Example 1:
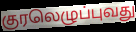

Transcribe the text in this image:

குரலெழுப்புவது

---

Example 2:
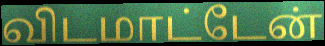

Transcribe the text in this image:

விடமாட்டேன்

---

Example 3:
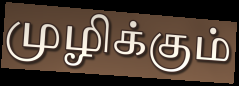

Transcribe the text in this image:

முழிக்கும்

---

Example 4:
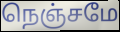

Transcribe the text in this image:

நெஞ்சமே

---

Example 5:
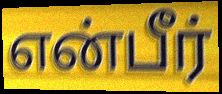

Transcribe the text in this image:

என்பீர்